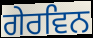
ਗੇਰਵਿਨ